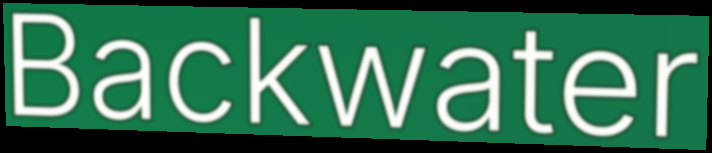
Backwater